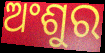
ଅଂଶୁର